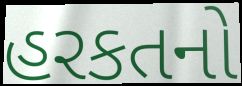
હરકતનો